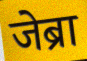
जेब्रा